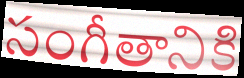
సంగీతానికి